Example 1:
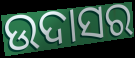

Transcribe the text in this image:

ଉଦାସର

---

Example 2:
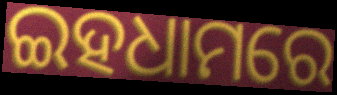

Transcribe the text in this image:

ଇହଧାମରେ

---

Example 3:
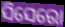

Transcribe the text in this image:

ସିସେରୋ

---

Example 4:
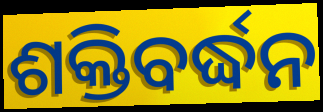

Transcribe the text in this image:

ଶକ୍ତିବର୍ଦ୍ଧନ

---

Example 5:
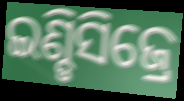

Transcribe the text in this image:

ଇଣ୍ଡିସିଜ୍ରେ